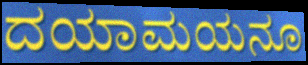
ದಯಾಮಯನೂ